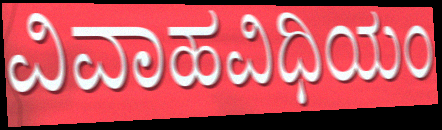
ವಿವಾಹವಿಧಿಯಂ